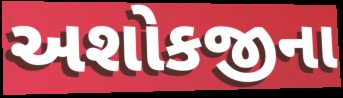
અશોકજીના